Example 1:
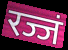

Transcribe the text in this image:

रज्जं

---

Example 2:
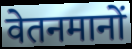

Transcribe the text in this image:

वेतनमानों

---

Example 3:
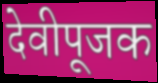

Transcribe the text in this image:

देवीपूजक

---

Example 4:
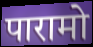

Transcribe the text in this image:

पारामो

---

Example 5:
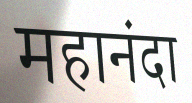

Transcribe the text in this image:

महानंदा